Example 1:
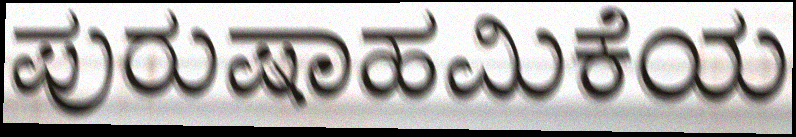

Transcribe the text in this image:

ಪುರುಷಾಹಮಿಕೆಯ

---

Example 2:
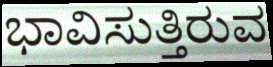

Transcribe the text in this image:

ಭಾವಿಸುತ್ತಿರುವ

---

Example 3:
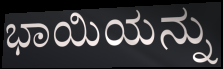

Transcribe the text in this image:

ಭಾಯಿಯನ್ನು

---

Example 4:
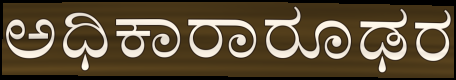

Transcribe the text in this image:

ಅಧಿಕಾರಾರೂಢರ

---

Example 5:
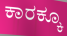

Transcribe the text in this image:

ಕಾರಕ್ಕೂ